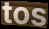
tos